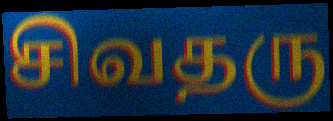
சிவதரு